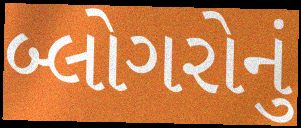
બ્લોગરોનું